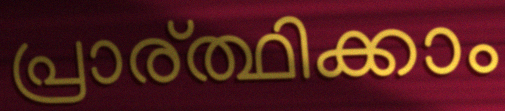
പ്രാര്ത്ഥിക്കാം